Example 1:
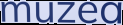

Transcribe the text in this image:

muzea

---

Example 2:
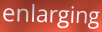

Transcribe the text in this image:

enlarging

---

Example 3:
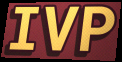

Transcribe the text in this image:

IVP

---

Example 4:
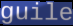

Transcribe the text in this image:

guile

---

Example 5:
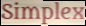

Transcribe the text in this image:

Simplex